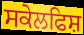
ਸਕੇਲਫਿਸ਼